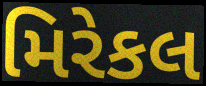
મિરેકલ